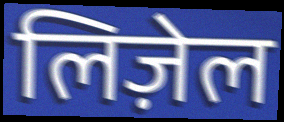
लिज़ेल